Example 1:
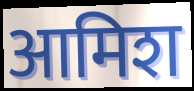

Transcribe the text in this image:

आमिश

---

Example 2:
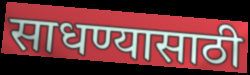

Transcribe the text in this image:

साधण्यासाठी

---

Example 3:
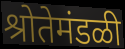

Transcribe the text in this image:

श्रोतेमंडळी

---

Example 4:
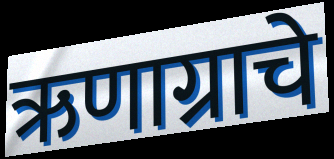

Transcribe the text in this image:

ऋणाग्राचे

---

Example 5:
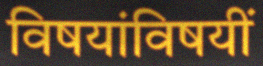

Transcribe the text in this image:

विषयांविषयीं